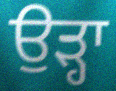
ਉੜ੍ਹਾ